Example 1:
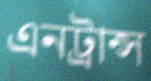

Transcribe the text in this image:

এনট্রান্স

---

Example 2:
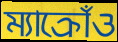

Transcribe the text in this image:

ম্যাক্রোঁও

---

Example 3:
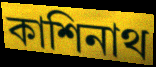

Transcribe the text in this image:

কাশিনাথ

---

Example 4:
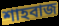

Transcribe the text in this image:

শাহবাজ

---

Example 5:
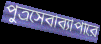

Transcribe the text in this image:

পুত্রসেবাব্যাপারে